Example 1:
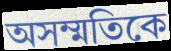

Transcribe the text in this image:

অসম্মতিকে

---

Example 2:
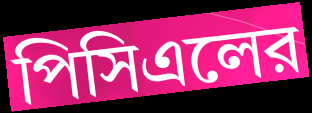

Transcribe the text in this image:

পিসিএলের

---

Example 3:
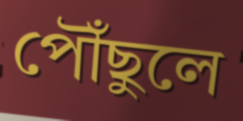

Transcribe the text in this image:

পৌঁছুলে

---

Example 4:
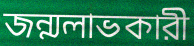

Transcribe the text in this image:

জন্মলাভকারী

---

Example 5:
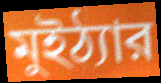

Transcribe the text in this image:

মুইঠ্যার